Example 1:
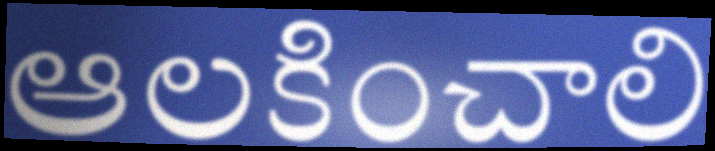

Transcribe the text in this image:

ఆలకించాలి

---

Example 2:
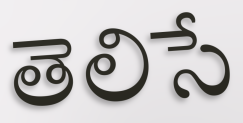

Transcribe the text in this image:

తెలిసే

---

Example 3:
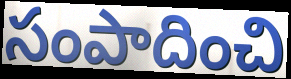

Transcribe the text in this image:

సంపాదించి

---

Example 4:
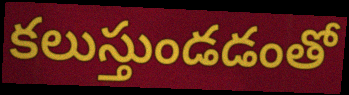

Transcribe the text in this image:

కలుస్తుండడంతో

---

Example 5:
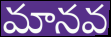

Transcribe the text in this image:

మానవ